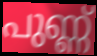
പുണ്ണ്